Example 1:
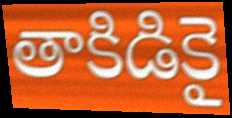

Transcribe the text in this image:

తాకిడికై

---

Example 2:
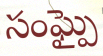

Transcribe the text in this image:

సంఘ్పై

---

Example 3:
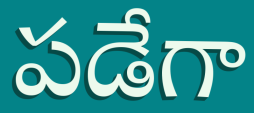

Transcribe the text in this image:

పడేగా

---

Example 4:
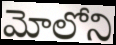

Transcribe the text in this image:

మోలోని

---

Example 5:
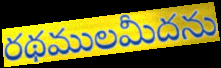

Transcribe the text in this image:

రథములమీదను